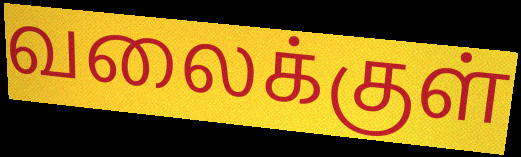
வலைக்குள்